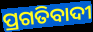
ପ୍ରଗତିବାଦୀ